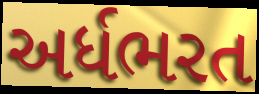
અર્ધભરત